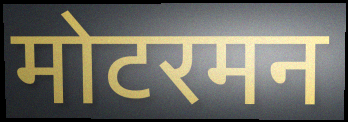
मोटरमन